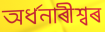
অৰ্ধনাৰীশ্বৰ